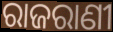
ରାଜରାଣୀ